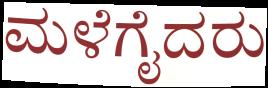
ಮಳೆಗೈದರು